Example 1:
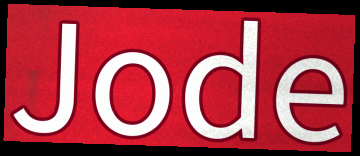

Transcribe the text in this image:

Jode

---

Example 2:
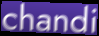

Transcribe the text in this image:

chandi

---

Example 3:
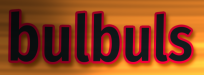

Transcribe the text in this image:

bulbuls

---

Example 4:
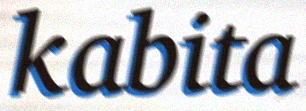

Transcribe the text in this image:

kabita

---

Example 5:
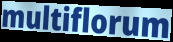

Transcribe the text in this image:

multiflorum